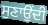
ਸੁਣਾਉਂਦੀ